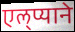
एल्प्याने